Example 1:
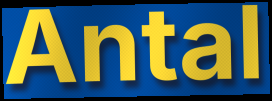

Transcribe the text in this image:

Antal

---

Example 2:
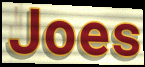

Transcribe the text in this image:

Joes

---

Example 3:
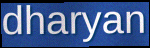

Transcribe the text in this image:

dharyan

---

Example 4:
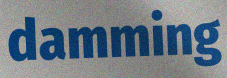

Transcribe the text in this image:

damming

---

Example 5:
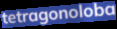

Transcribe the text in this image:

tetragonoloba